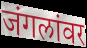
जंगलांवर